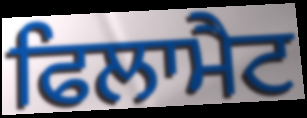
ਫਿਲਾਮੈਟ